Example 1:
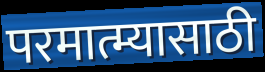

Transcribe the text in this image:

परमात्म्यासाठी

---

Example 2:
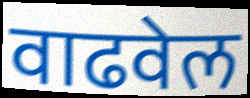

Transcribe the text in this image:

वाढवेल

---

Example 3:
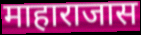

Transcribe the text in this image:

माहाराजास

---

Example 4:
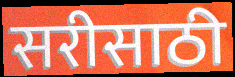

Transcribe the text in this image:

सरीसाठी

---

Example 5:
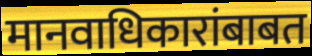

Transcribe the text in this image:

मानवाधिकारांबाबत